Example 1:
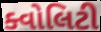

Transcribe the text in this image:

ક્વોલિટી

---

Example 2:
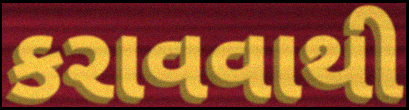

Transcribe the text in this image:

કરાવવાથી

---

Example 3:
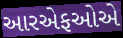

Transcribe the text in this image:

આરએફઓએ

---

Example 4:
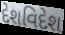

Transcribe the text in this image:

દેશવિદેશ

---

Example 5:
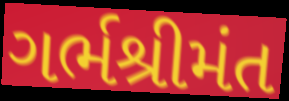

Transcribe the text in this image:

ગર્ભશ્રીમંત